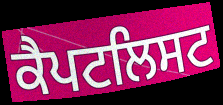
ਕੈਪਟਲਿਸਟ